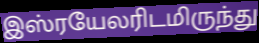
இஸ்ரயேலரிடமிருந்து